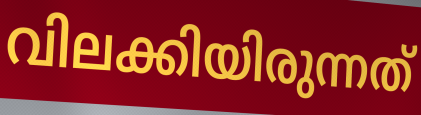
വിലക്കിയിരുന്നത്